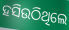
ହସିଉଠିଥିଲେ